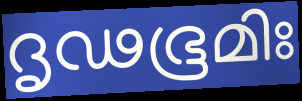
ദൃഢഭൂമിഃ